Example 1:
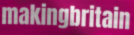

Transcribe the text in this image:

makingbritain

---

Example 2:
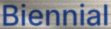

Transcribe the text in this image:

Biennial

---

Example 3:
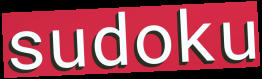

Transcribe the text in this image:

sudoku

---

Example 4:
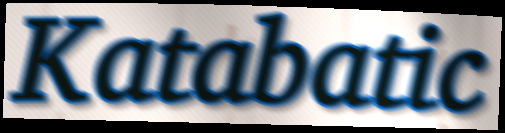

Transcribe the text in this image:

Katabatic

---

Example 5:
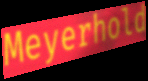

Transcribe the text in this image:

Meyerhold